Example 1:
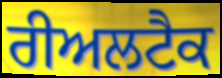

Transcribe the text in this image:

ਰੀਅਲਟੈਕ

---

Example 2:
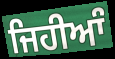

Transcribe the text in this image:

ਜਿਹੀਆੰ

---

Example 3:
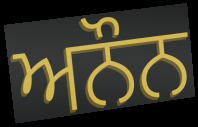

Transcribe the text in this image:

ਅਨੌਨ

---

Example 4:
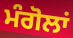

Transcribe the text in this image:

ਮੰਗੋਲਾਂ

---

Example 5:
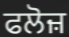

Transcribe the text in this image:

ਫਲੋਜ਼